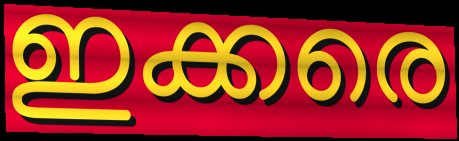
ഇക്കരെ